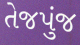
તેજપુંજ